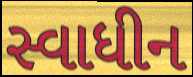
સ્વાધીન